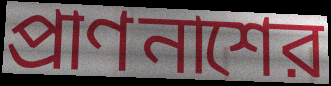
প্রাণনাশের